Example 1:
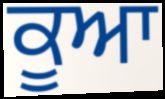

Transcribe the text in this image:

ਕੂਆ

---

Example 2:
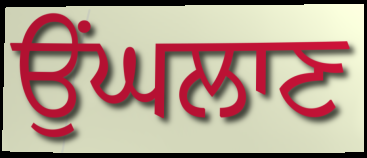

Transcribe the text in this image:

ਉਂਘਲਾਣ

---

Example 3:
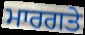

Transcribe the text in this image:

ਮਾਰਗਤੇ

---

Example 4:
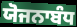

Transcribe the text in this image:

ਯੋਜਨਾਬੰਧ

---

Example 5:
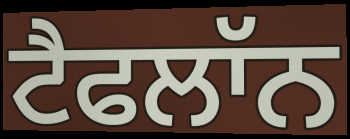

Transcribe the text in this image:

ਟੈਫਲਾੱਨ